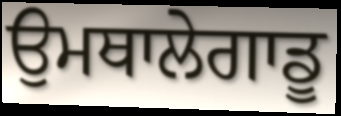
ਉਮਥਾਲੇਗਾਡੂ